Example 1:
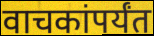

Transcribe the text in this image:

वाचकांपर्यंत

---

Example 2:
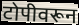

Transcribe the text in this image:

टोपीवरून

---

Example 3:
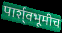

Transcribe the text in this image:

पार्श्वभूमीच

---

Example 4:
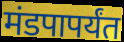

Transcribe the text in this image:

मंडपापर्यंत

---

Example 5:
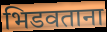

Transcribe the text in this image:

भिडवताना